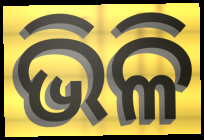
ଭିଳି